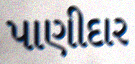
પાણીદાર